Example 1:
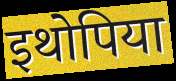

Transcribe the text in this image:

इथोपिया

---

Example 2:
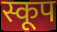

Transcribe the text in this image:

स्कूप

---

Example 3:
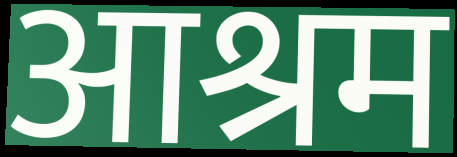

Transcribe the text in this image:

आश्रम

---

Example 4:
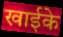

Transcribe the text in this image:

खाईके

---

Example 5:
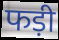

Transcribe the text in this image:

फड़ी